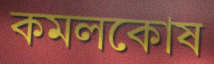
কমলকোষ